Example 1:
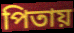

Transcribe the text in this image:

পিতায়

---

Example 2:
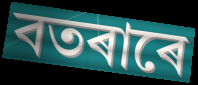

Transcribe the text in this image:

বতৰাৰে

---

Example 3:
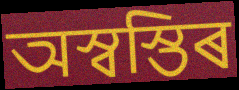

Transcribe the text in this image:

অস্বস্তিৰ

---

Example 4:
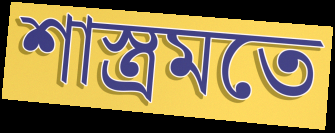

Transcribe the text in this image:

শাস্ত্ৰমতে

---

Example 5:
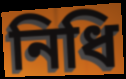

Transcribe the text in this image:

নিধি